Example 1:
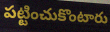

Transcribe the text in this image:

పట్టించుకొంటారు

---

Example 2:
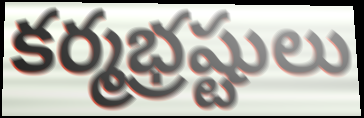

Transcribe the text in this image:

కర్మభ్రష్టులు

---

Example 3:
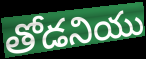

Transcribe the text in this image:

తోడనియు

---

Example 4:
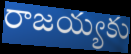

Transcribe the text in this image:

రాజయ్యకు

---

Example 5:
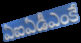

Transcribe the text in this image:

ఏఐఏడీఎంకే